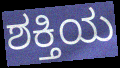
ಶಕ್ತಿಯ